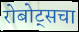
रोबोट्सचा